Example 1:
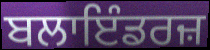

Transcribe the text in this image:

ਬਲਾਇੰਡਰਜ਼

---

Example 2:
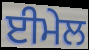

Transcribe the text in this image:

ਈਮੇਲ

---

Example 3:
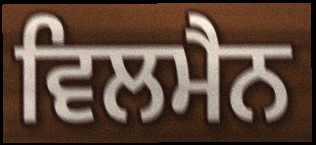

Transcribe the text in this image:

ਵਿਲਮੈਨ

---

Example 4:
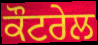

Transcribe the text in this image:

ਕੌਟਰੇਲ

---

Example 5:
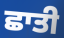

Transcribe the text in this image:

ਛਾਤੀ